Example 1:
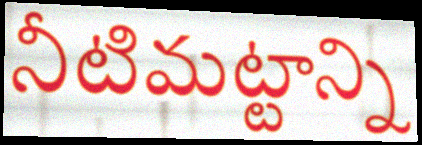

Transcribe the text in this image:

నీటిమట్టాన్ని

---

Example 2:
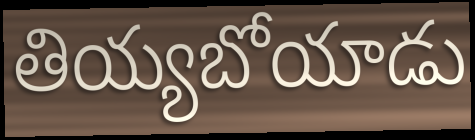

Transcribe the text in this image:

తియ్యబోయాడు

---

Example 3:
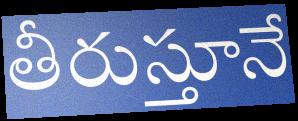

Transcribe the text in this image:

తీరుస్తూనే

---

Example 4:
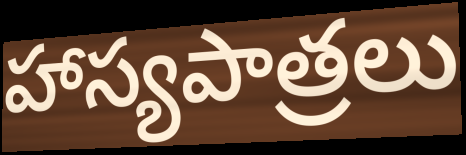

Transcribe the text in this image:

హాస్యపాత్రలు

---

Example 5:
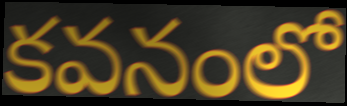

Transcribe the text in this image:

కవనంలో